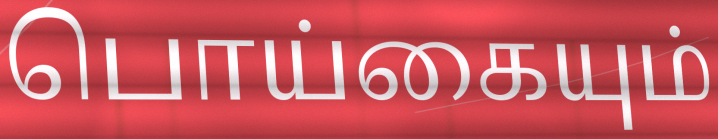
பொய்கையும்